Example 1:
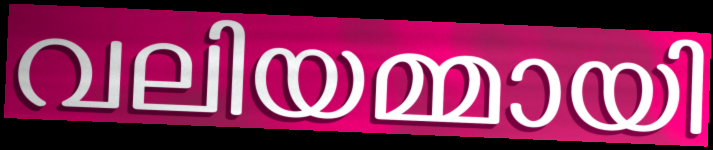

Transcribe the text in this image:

വലിയമ്മായി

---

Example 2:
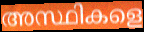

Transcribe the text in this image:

അസ്ഥികളെ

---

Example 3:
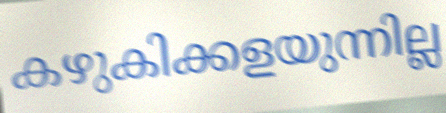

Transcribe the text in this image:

കഴുകിക്കളയുന്നില്ല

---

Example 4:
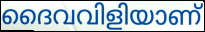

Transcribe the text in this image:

ദൈവവിളിയാണ്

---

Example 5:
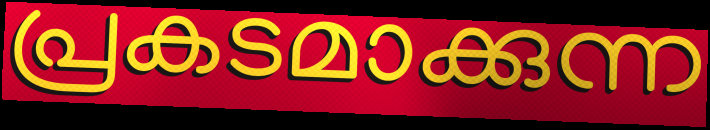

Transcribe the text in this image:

പ്രകടമാക്കുന്ന